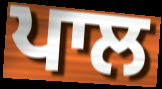
ਪਾਲ